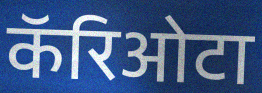
कॅरिओटा